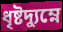
ধৃষ্টদ্যুম্নে